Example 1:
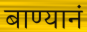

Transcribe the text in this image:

बाण्यानं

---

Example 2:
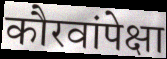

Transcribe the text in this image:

कौरवांपेक्षा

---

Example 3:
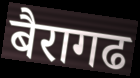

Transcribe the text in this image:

बैरागढ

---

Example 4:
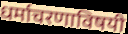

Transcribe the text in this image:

धर्माचरणाविषयी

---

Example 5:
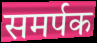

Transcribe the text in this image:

समर्पक